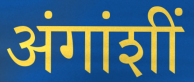
अंगांशीं